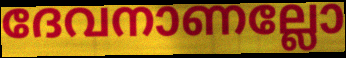
ദേവനാണല്ലോ